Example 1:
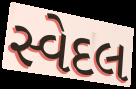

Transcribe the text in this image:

સ્વેદલ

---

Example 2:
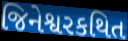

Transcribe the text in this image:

જિનેશ્વરકથિત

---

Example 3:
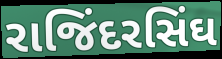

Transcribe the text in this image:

રાજિંદરસિંઘ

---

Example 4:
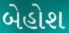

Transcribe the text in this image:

બેહોશ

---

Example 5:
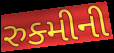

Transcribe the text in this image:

રુક્મીની